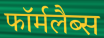
फॉर्मलैब्स